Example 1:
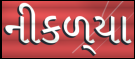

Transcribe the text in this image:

નીકળ્‌યા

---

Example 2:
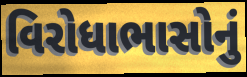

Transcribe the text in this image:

વિરોધાભાસોનું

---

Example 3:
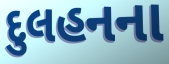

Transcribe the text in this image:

દુલહનના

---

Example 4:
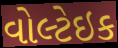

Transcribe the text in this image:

વોલ્ટેઇક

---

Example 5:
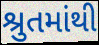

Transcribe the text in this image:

શ્રુતમાંથી